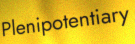
Plenipotentiary